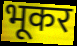
भूकर